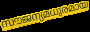
സൗജന്യമധുരമായ